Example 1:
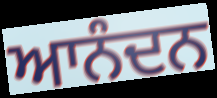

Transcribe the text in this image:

ਆਨੰਦਨ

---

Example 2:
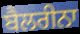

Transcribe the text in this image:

ਬੈਲਰੀਨਾ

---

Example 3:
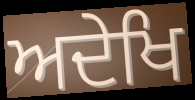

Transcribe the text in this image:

ਅਦੇਖਿ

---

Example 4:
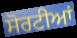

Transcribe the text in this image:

ਸੋਰਟੀਆਂ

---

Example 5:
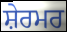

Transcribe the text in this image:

ਸ਼ੇਰਮਰ